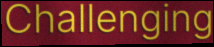
Challenging